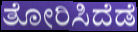
ತೋರಿಸಿದೆಡೆ